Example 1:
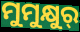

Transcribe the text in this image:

ମୁମୁକ୍ଷୁର୍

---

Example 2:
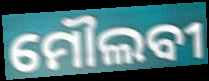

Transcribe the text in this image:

ମୌଲବୀ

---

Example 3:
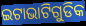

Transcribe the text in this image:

ଇଟାଭାଟିଗୁଡିକ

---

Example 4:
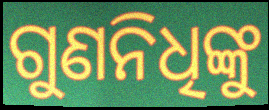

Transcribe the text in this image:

ଗୁଣନିଧିଙ୍କୁ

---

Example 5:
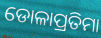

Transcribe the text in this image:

ଡୋଳାପ୍ରତିମା